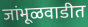
जांभूळवाडीत